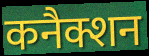
कनैक्शन